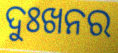
ଦୁଃଖନର